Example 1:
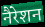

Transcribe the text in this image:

नैरेशन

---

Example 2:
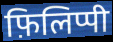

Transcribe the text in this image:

फ़िलिप्पी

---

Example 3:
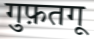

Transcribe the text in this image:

गुफ़तगू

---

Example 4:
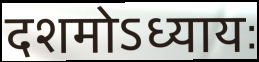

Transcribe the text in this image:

दशमोऽध्यायः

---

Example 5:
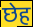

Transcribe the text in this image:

छेह